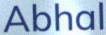
Abhal